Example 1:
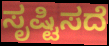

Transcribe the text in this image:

ಸೃಷ್ಟಿಸದೆ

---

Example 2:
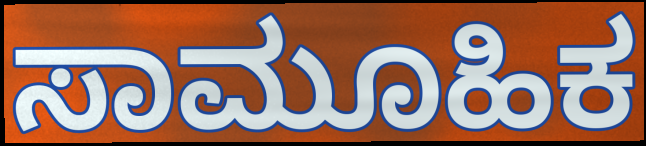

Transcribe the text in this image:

ಸಾಮೂಹಿಕ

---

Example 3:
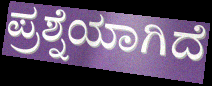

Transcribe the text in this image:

ಪ್ರಶ್ನೆಯಾಗಿದೆ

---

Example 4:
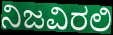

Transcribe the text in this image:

ನಿಜವಿರಲಿ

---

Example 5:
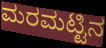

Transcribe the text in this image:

ಮರಮಟ್ಟಿನ